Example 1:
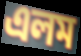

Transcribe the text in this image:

এলম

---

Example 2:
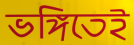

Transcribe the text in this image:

ভঙ্গিতেই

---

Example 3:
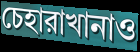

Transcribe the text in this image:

চেহারাখানাও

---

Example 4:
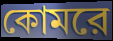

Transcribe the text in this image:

কোমরে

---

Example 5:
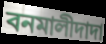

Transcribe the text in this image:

বনমালীদাদা